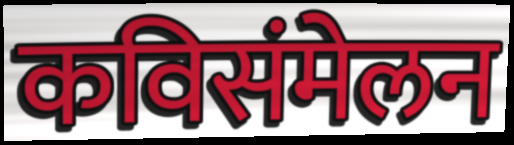
कविसंमेलन